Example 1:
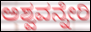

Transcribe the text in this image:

ಅಶ್ವವನ್ನೇರಿ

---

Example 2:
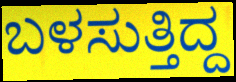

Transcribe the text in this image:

ಬಳಸುತ್ತಿದ್ದ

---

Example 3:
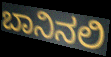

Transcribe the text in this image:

ಬಾನಿನಲಿ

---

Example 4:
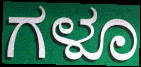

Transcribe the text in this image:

ಗಳೂ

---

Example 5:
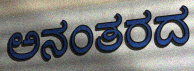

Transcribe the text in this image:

ಅನಂತರದ